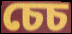
চেচ